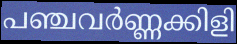
പഞ്ചവർണ്ണക്കിളി